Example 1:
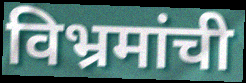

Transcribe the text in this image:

विभ्रमांची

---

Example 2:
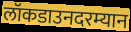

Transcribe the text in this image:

लॉकडाउनदरम्यान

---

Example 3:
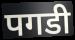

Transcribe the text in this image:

पगडी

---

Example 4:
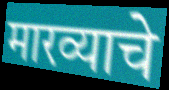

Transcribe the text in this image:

मारव्याचे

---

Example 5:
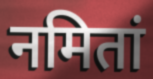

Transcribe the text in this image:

नमितां